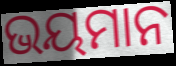
ଭୟମାନ